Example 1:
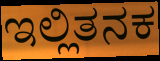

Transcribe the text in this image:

ಇಲ್ಲಿತನಕ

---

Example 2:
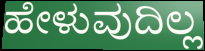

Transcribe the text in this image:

ಹೇಳುವುದಿಲ್ಲ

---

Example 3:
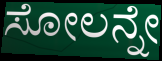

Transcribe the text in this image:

ಸೋಲನ್ನೇ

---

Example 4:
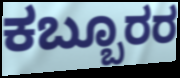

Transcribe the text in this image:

ಕಬ್ಬೂರರ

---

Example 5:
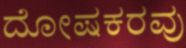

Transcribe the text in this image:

ದೋಷಕರವು